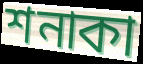
শনাকা